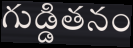
గుడ్డితనం